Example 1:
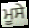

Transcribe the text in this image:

ਮੂਸੇ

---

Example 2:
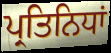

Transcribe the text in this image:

ਪ੍ਰਤਿਨਿਧਾਂ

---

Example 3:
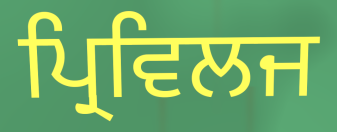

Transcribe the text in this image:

ਪ੍ਰਿਵਿਲਜ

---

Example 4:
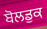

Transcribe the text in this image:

ਬੋਲਡੁਕ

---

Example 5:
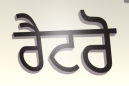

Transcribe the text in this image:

ਰੈਟਰੋ